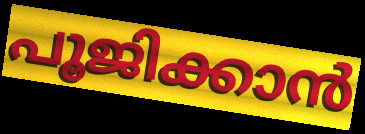
പൂജിക്കാൻ